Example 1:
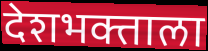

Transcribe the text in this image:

देशभक्ताला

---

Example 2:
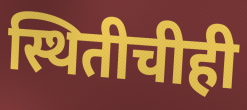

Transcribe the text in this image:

स्थितीचीही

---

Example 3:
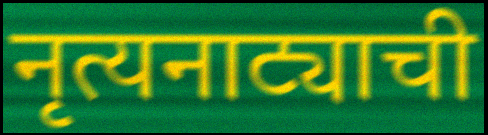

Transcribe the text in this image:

नृत्यनाट्याची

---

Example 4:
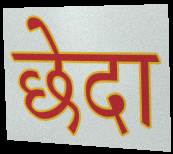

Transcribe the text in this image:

छेदा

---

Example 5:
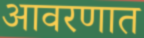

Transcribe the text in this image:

आवरणात